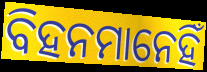
ବିହନମାନେହିଁ